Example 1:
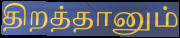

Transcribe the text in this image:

திறத்தானும்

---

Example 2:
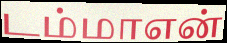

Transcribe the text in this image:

டம்மாஎன்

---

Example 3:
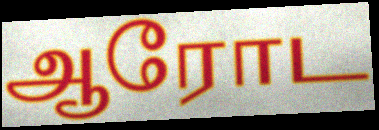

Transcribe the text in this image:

ஆரோட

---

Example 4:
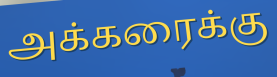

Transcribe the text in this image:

அக்கரைக்கு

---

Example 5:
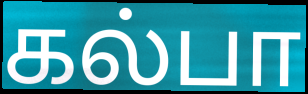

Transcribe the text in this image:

கல்பா